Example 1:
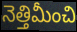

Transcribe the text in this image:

నెత్తిమీంచి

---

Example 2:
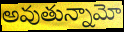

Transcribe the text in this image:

అవుతున్నామో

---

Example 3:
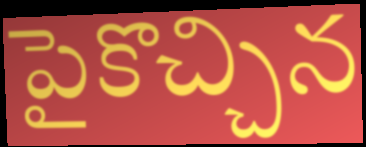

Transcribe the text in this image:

పైకొచ్చిన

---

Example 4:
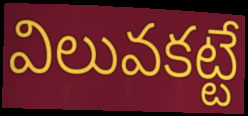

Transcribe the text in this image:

విలువకట్టే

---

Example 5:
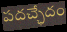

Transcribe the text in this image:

పదచ్ఛేదం